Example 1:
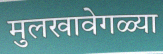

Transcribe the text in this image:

मुलखावेगळ्या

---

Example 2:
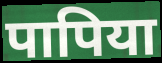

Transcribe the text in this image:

पापिया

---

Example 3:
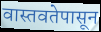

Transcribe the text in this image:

वास्तवतेपासून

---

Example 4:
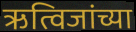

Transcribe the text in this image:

ऋत्विजांच्या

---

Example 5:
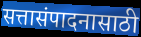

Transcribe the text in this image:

सत्तासंपादनासाठी